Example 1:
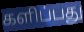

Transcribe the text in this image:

களிப்பது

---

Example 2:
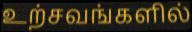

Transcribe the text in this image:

உற்சவங்களில்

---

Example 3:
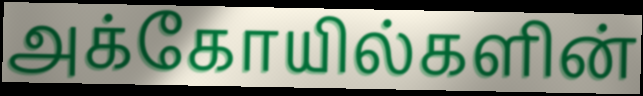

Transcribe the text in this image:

அக்கோயில்களின்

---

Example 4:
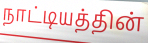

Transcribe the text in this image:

நாட்டியத்தின்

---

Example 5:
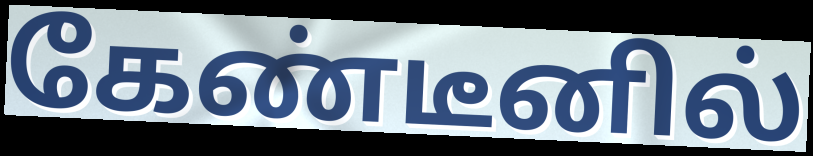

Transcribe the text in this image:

கேண்டீனில்